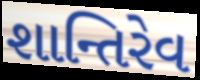
શાન્તિરેવ